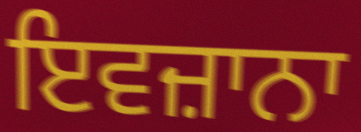
ਇਵਜ਼ਾਨਾ